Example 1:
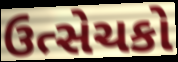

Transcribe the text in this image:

ઉત્સેચકો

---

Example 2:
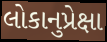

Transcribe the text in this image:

લોકાનુપ્રેક્ષા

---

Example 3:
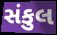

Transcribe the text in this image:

સંકુલ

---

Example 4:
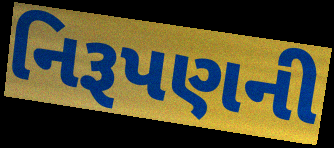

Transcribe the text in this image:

નિરૂપણની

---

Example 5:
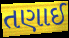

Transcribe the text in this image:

તણાઈ